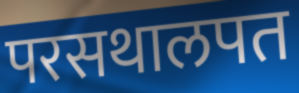
परसथालपत